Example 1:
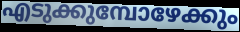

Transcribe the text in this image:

എടുക്കുമ്പോഴേക്കും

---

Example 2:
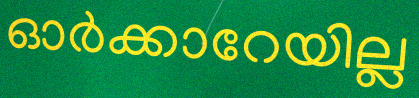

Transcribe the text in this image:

ഓർക്കാറേയില്ല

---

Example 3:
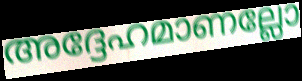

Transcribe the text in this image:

അദ്ദേഹമാണല്ലോ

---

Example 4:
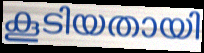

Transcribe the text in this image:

കൂടിയതായി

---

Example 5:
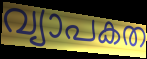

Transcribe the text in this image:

വ്യാപകത